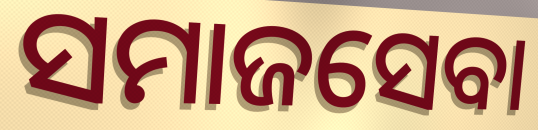
ସମାଜସେବା